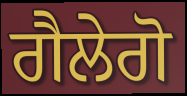
ਗੈਲੇਗੋ